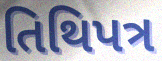
તિથિપત્ર